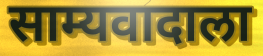
साम्यवादाला